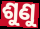
ଶୁଣୁ